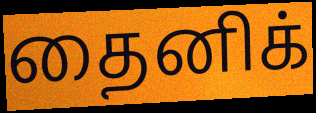
தைனிக்